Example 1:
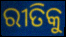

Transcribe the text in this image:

ରୀତିକୁ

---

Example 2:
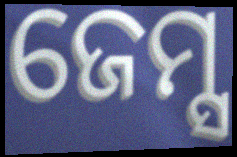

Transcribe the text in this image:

ଜେମ୍ସ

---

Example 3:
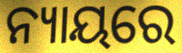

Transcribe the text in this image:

ନ୍ୟାୟରେ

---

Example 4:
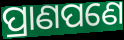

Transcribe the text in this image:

ପ୍ରାଣପଣେ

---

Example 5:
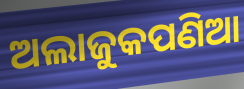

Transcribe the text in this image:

ଅଲାଜୁକପଣିଆ